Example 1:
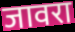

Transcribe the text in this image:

जावरा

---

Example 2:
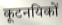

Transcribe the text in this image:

कूटनयिकों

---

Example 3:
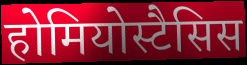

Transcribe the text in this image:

होमियोस्टैसिस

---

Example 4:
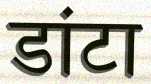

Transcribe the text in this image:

डांटा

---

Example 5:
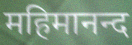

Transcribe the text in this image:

महिमानन्द